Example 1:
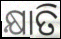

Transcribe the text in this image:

କ୍ଷାତି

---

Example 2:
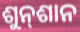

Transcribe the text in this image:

ଶୁନ୍‍ଶାନ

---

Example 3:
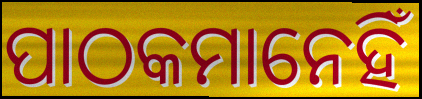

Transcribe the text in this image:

ପାଠକମାନେହିଁ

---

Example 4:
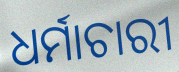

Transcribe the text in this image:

ଧର୍ମାଚାରୀ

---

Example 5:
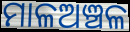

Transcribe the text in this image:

ମାଳଅଞ୍ଚଳ